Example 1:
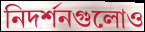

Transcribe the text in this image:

নিদর্শনগুলোও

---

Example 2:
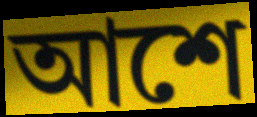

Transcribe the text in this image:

আশে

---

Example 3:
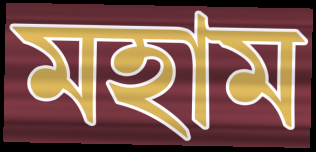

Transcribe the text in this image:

মহাম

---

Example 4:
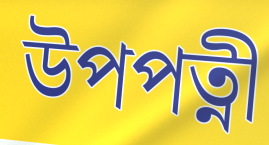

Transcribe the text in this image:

উপপত্নী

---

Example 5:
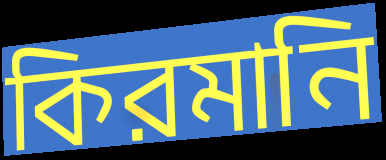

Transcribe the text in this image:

কিরমানি